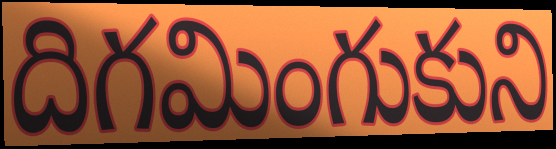
దిగమింగుకుని